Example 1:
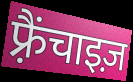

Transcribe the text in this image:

फ़्रैंचाइज़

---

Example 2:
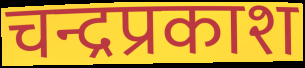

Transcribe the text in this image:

चन्द्रप्रकाश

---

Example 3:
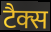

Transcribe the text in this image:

टैक्‍स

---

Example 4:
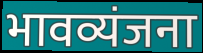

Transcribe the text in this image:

भावव्यंजना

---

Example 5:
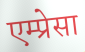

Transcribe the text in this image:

एम्प्रेसा